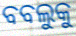
ବବଲୁକୁ